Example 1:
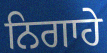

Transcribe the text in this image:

ਨਿਗਾਹੇ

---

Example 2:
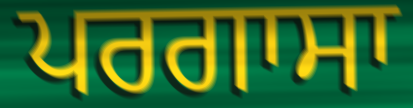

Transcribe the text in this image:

ਪਰਗਾਸਾ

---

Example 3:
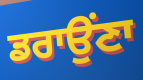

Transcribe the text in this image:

ਡਰਾਉਂਣਾ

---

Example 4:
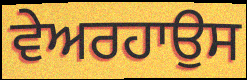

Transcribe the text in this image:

ਵੇਅਰਹਾਉਸ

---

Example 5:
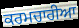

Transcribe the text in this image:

ਕਰਮਚਾਰੀਆ